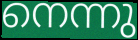
നെന്നു